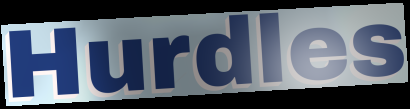
Hurdles